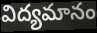
విద్యమానం